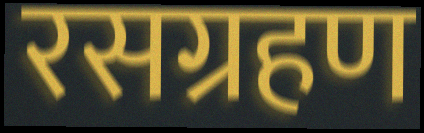
रसग्रहण